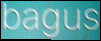
bagus